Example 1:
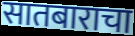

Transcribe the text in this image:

सातबाराचा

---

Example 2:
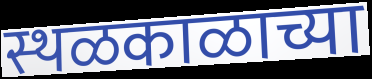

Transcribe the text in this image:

स्थळकाळाच्या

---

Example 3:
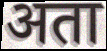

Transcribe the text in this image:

अता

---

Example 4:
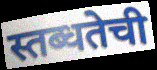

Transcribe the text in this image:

स्तब्धतेची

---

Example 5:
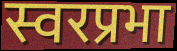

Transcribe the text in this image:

स्वरप्रभा